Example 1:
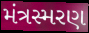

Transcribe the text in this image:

મંત્રસ્મરણ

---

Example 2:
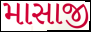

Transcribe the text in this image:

માસાજી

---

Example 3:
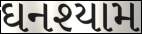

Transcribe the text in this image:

ઘનશ્યામ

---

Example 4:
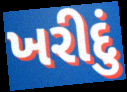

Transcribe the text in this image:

ખરીદું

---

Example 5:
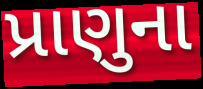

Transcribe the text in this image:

પ્રાણુના